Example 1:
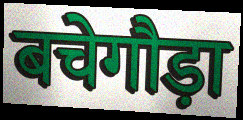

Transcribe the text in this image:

बचेगौड़ा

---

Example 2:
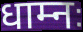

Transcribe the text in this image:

धाम्नः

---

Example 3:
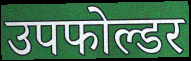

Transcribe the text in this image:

उपफोल्डर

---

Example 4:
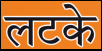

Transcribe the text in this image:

लटके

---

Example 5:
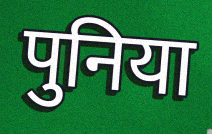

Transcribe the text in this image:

पुनिया